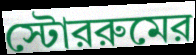
স্টোররুমের